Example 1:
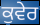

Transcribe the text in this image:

ਕੁਵੇਰ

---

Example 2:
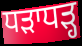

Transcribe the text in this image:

ਧੜਾਧੜ੍ਹ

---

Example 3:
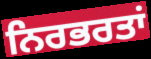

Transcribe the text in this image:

ਨਿਰਭਰਤਾਂ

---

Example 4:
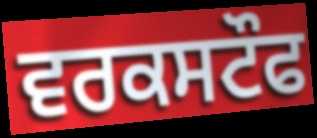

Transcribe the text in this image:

ਵਰਕਸਟੌਫ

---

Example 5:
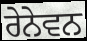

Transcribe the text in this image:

ਰੇਨੇਵਨ